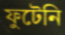
ফুটেনি